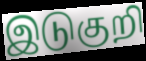
இடுகுறி